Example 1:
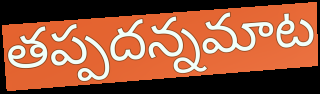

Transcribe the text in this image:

తప్పదన్నమాట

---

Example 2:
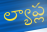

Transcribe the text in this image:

ల్యాప్ల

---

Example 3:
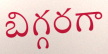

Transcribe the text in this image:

బిగ్గరగా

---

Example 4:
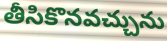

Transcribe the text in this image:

తీసికొనవచ్చును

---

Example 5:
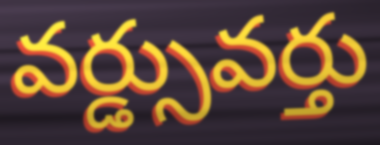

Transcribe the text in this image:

వర్డ్సువర్తు